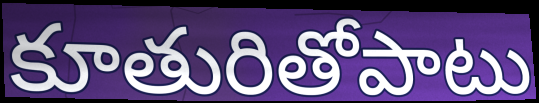
కూతురితోపాటు